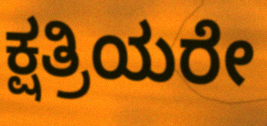
ಕ್ಷತ್ರಿಯರೇ